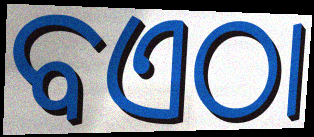
ବଏଠା